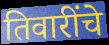
तिवारींचे